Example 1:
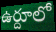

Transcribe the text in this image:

ఉర్దూలో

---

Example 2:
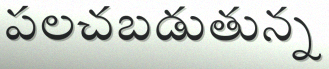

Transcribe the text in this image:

పలచబడుతున్న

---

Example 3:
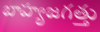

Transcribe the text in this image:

బాహ్యజగత్తు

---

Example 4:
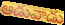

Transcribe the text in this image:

ఆడువాడు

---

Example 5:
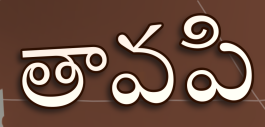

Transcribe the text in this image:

తావపి